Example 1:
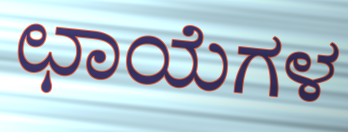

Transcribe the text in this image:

ಛಾಯೆಗಳ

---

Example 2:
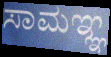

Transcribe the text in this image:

ಸಾಮಞ್ಞ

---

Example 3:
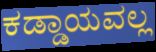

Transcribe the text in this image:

ಕಡ್ಡಾಯವಲ್ಲ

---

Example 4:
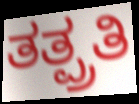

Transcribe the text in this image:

ತತ್ಪ್ರತಿ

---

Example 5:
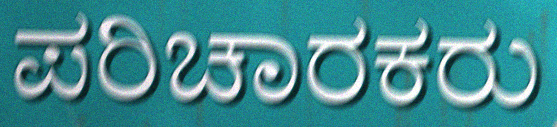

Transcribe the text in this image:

ಪರಿಚಾರಕರು